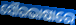
ସୌରଭାଷାରେ